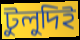
টুলুদিই